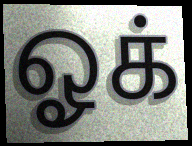
ஓக்